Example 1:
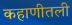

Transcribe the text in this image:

कहाणीतली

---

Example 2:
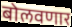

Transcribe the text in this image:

बोलवणार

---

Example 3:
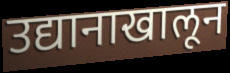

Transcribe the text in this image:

उद्यानाखालून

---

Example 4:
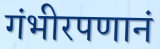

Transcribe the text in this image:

गंभीरपणानं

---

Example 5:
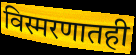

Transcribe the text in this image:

विस्मरणातही